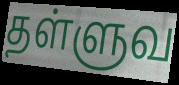
தள்ளுவ